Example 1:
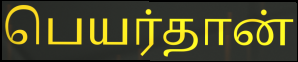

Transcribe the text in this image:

பெயர்தான்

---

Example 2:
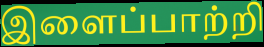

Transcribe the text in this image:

இளைப்பாற்றி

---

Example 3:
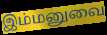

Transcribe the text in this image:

இம்மனுவை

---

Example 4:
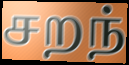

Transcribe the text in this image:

சறந்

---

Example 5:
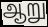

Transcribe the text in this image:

ஆறு